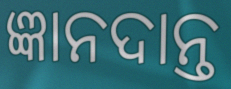
ଜ୍ଞାନଦାନ୍ତ